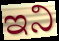
ఇని